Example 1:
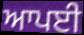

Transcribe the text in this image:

ਆਪਈ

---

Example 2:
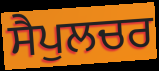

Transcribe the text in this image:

ਸੈਪੁਲਚਰ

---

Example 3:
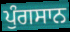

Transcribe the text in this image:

ਪੁੰਗਸਾਨ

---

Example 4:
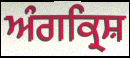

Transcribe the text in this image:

ਅੰਗਕ੍ਰਿਸ਼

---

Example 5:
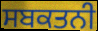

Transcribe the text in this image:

ਸਬਕਤਨੀ